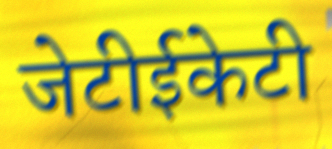
जेटीईकेटी